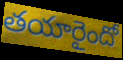
తయారైందో